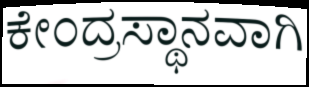
ಕೇಂದ್ರಸ್ಥಾನವಾಗಿ